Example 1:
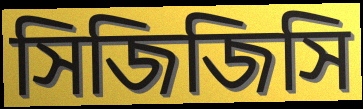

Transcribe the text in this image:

সিজিজিসি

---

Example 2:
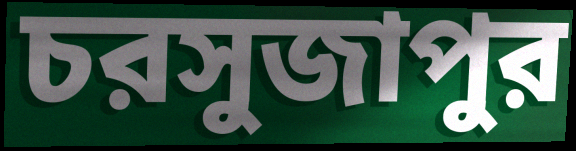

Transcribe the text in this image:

চরসুজাপুর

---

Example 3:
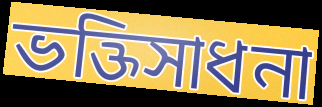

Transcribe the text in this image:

ভক্তিসাধনা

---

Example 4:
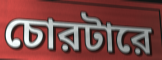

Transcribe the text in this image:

চোরটারে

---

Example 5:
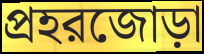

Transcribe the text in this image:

প্রহরজোড়া